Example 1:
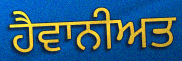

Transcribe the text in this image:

ਹੈਵਾਨੀਅਤ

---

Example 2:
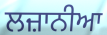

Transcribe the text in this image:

ਲਜ਼ਾਨੀਆ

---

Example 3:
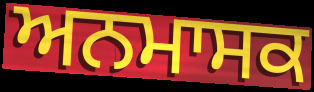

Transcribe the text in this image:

ਅਨਮਾਸਕ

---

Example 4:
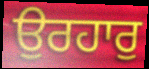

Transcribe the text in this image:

ਉਰਹਾਰੁ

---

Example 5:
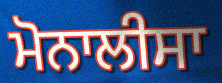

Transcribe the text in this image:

ਮੋਨਾਲੀਸਾ